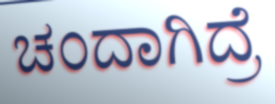
ಚಂದಾಗಿದ್ರೆ